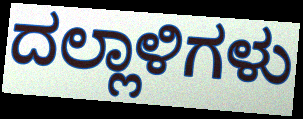
ದಲ್ಲಾಳಿಗಳು